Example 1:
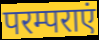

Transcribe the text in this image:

परम्पराएं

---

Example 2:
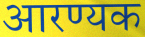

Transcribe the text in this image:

आरण्यक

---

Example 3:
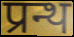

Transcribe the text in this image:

प्रन्थ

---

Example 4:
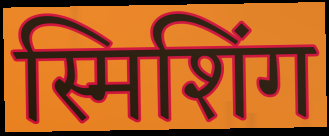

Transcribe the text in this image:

स्मिशिंग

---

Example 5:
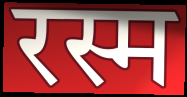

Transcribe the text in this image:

रस्म